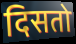
दिसतो